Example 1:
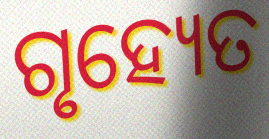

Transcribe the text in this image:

ଗୃହ୍ଯେତ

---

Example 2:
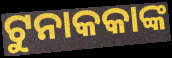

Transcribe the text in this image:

ଟୁନାକକାଙ୍କ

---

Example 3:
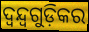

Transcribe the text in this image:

ଦ୍ୱନ୍ଦ୍ୱଗୁଡ଼ିକର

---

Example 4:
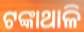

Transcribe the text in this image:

ଟଙ୍କାଥାଳି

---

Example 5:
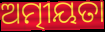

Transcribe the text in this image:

ଅତ୍ମୀୟତା